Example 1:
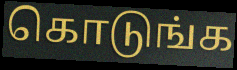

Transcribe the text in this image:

கொடுங்க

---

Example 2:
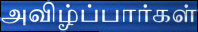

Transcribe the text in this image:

அவிழ்ப்பார்கள்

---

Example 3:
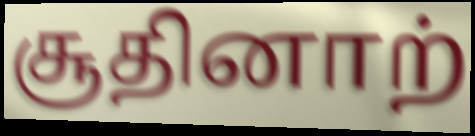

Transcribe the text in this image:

சூதினாற்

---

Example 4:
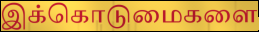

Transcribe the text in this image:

இக்கொடுமைகளை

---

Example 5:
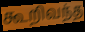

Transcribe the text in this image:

கூறிவந்த